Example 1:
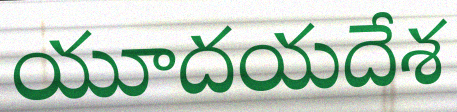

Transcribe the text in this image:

యూదయదేశ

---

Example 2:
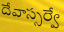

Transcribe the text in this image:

దేవాస్సర్వే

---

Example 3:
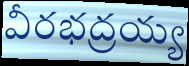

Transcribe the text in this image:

వీరభద్రయ్య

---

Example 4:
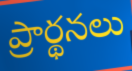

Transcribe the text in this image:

ప్రార్థనలు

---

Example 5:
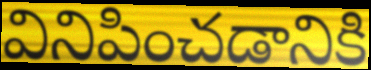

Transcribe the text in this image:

వినిపించడానికి